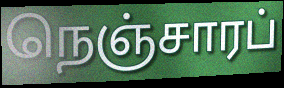
நெஞ்சாரப்